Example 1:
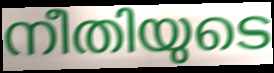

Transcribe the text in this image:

നീതിയുടെ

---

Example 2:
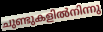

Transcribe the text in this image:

ചുണ്ടുകളിൽനിന്നു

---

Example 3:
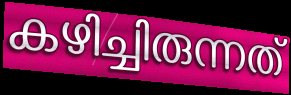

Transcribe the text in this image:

കഴിച്ചിരുന്നത്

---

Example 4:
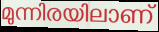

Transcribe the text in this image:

മുന്നിരയിലാണ്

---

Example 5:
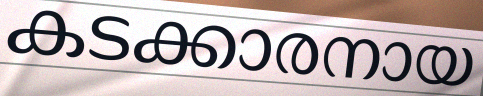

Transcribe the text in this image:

കടക്കാരനായ